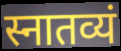
स्नातव्यं